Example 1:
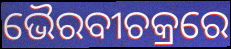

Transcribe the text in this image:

ଭୈରବୀଚକ୍ରରେ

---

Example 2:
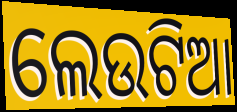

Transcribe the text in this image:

ଲେଉଟିଆ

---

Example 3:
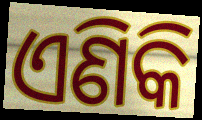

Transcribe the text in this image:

ଏଣିକି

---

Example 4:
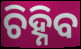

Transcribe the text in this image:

ଚିହ୍ନିବ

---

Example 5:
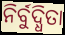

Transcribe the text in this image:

ନିର୍ବୁଦ୍ଧିତା